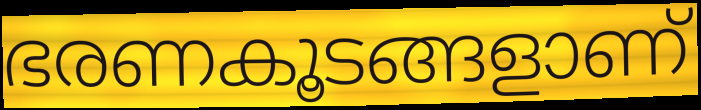
ഭരണകൂടങ്ങളാണ്